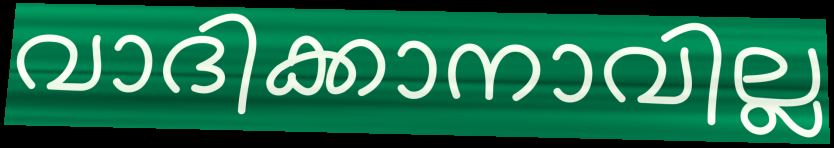
വാദിക്കാനാവില്ല